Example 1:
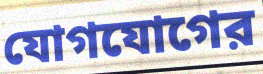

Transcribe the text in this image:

যোগযোগের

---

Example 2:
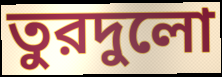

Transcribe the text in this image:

তুরদুলো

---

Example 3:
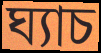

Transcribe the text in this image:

ঘ্যাচ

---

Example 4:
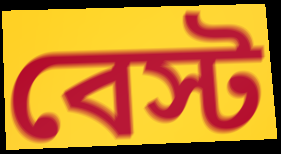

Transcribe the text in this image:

বেস্ট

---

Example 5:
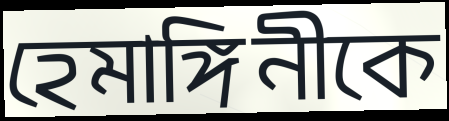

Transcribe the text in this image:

হেমাঙ্গিনীকে